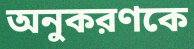
অনুকরণকে